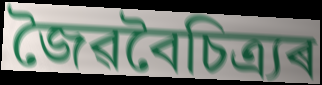
জৈৱবৈচিত্ৰ্যৰ